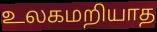
உலகமறியாத